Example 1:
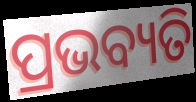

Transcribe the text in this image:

ପ୍ରଭବ୍ୟତି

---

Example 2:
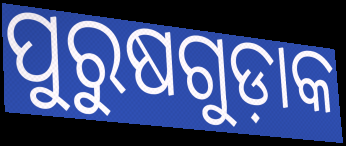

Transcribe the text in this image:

ପୁରୁଷଗୁଡ଼ାକ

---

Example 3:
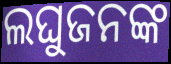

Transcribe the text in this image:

ଲଘୁଜନଙ୍କ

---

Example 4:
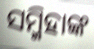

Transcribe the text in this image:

ସମ୍ମିହାଙ୍କ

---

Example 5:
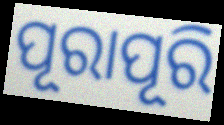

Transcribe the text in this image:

ପୂରାପୂରି